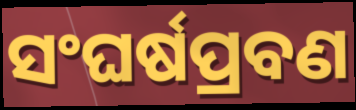
ସଂଘର୍ଷପ୍ରବଣ